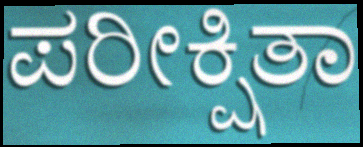
ಪರೀಕ್ಷಿತಾ